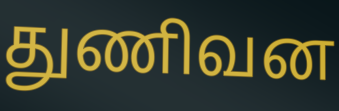
துணிவன